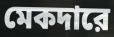
মেকদারে